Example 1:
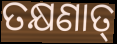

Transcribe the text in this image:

ତକ୍ଷଣାତ୍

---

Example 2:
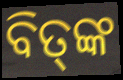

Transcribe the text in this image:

ବିତ୍‌ଙ୍କ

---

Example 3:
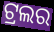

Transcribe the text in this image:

ଟ୍ରଲର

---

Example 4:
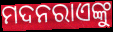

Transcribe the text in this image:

ମଦନରାଏଙ୍କୁ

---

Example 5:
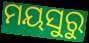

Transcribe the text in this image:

ମୟସୁରୁ